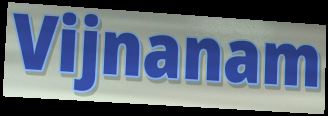
Vijnanam